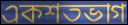
একশতভাগ